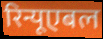
रिन्यूएबल